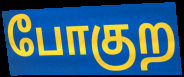
போகுற